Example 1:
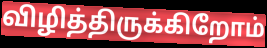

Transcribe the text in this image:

விழித்திருக்கிறோம்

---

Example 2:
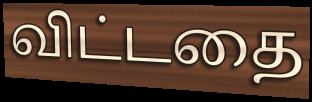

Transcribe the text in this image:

விட்டதை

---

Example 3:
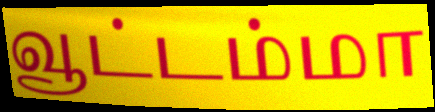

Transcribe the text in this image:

வூட்டம்மா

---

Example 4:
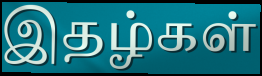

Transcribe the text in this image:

இதழ்கள்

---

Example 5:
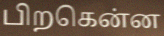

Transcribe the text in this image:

பிறகென்ன